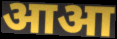
आआ